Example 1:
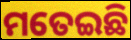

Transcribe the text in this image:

ମତେଇଛି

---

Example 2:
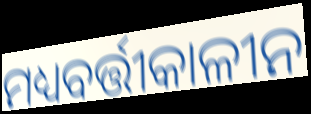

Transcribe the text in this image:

ମଧ୍ୟବର୍ତ୍ତୀକାଳୀନ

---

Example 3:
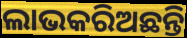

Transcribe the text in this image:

ଲାଭକରିଅଛନ୍ତି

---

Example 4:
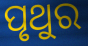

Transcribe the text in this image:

ପୃଥୁର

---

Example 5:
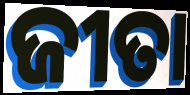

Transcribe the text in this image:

ଜୀତା